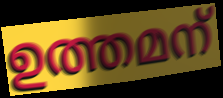
ഉത്തമന്